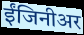
ईंजिनीअर